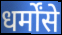
धर्मोंसे